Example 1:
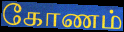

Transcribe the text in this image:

கோணம்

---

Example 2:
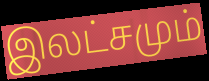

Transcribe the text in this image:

இலட்சமும்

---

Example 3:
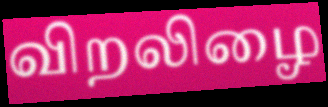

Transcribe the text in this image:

விறலிழை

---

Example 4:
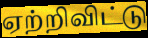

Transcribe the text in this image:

ஏற்றிவிட்டு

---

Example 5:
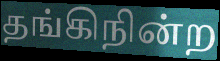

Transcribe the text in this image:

தங்கிநின்ற